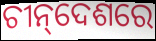
ଚୀନ୍‌ଦେଶରେ